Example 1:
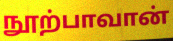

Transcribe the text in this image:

நூற்பாவான்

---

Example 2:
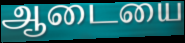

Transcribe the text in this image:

ஆடையை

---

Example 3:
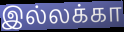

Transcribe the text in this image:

இல்லக்கா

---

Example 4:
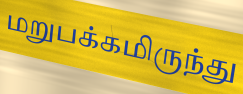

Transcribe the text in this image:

மறுபக்கமிருந்து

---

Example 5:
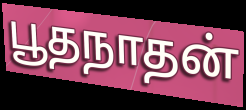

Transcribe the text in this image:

பூதநாதன்